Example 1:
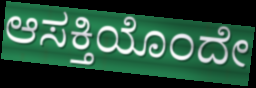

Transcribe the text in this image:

ಆಸಕ್ತಿಯೊಂದೇ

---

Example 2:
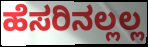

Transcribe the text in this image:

ಹೆಸರಿನಲ್ಲಲ್ಲ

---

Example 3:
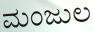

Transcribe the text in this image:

ಮಂಜುಲ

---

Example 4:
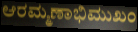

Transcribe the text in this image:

ಆರಮ್ಮಣಾಭಿಮುಖಂ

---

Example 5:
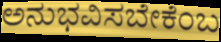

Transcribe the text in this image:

ಅನುಭವಿಸಬೇಕೆಂಬ